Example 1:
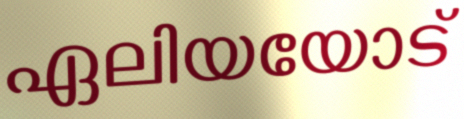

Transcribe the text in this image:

ഏലിയയോട്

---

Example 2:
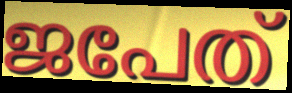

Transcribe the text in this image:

ജപേത്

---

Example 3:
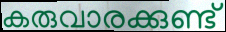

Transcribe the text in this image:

കരുവാരക്കുണ്ട്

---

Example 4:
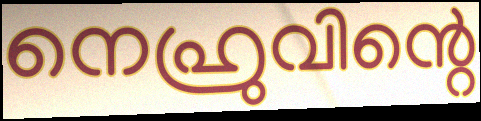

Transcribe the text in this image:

നെഹ്രുവിന്റെ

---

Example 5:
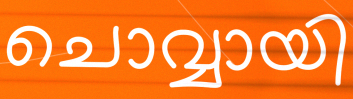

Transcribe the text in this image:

ചൊവ്വായി